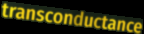
transconductance